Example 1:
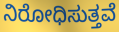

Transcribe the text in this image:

ನಿರೋಧಿಸುತ್ತವೆ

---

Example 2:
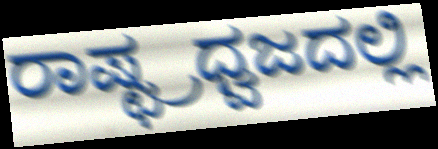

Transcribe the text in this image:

ರಾಷ್ಟ್ರಧ್ವಜದಲ್ಲಿ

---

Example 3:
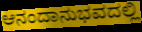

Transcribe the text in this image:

ಆನಂದಾನುಭವದಲ್ಲಿ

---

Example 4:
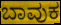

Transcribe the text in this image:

ಬಾವುಕ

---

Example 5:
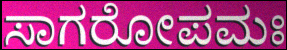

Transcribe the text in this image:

ಸಾಗರೋಪಮಃ